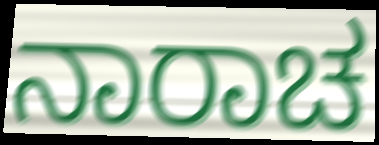
ನಾರಾಚ